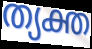
ത്യക്ത